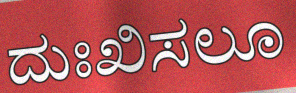
ದುಃಖಿಸಲೂ